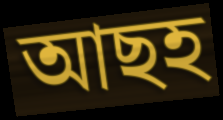
আছহ